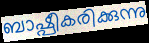
ബാഷ്പീകരിക്കുന്നു